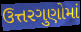
ઉત્તરગુણોમાં